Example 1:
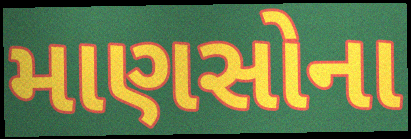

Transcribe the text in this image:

માણસોના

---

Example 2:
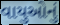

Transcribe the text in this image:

વાયુઓનું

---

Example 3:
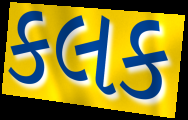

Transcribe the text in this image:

કલક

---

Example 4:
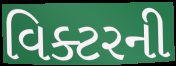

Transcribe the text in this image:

વિક્ટરની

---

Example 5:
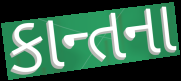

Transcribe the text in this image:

કાન્તના